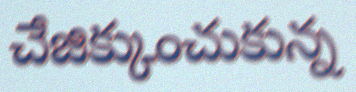
చేజిక్కుంచుకున్న